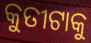
କୁତୀଟାକୁ